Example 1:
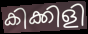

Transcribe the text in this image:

കിക്കിളി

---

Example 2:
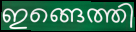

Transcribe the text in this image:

ഇങ്ങെത്തി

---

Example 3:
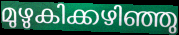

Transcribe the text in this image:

മുഴുകിക്കഴിഞ്ഞു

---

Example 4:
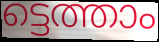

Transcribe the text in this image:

ട്ടെത്താം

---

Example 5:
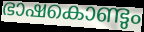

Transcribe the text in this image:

ഭാഷകൊണ്ടും